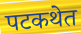
पटकथेत